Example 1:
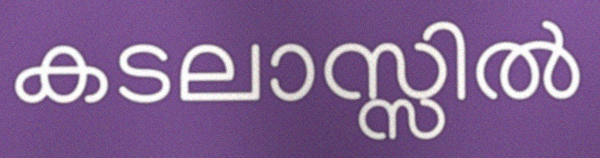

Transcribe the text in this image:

കടലാസ്സിൽ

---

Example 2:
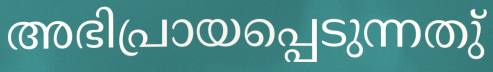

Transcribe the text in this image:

അഭിപ്രായപ്പെടുന്നതു്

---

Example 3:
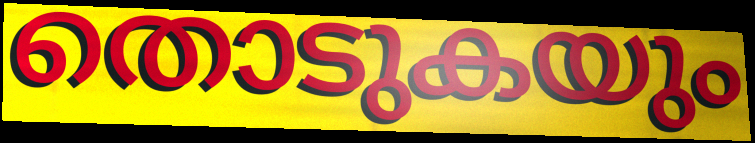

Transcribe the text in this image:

തൊടുകയും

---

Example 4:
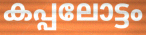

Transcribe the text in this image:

കപ്പലോട്ടം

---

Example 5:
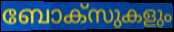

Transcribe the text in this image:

ബോക്സുകളും